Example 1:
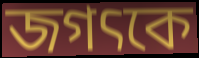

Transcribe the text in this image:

জগৎকে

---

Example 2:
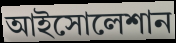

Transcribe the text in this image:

আইসোলেশান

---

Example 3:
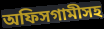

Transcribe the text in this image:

অফিসগামীসহ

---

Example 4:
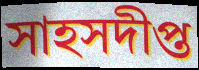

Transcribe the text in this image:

সাহসদীপ্ত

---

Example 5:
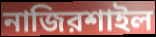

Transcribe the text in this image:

নাজিরশাইল